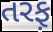
તરફ઼